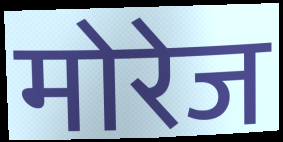
मोरेज